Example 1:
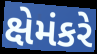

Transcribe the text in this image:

ક્ષેમંકરે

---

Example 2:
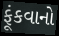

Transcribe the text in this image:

ફૂંકવાનો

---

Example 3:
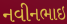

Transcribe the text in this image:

નવીનભાઇ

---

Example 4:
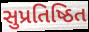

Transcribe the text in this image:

સુપ્રતિષ્ઠિત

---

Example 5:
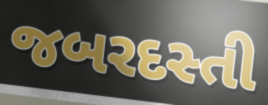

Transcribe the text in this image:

જબરદસ્તી